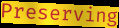
Preserving